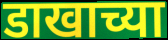
डाखाच्या